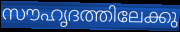
സൗഹൃദത്തിലേക്കു